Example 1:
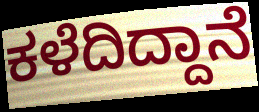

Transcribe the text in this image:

ಕಳೆದಿದ್ದಾನೆ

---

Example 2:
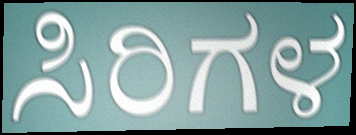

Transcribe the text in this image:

ಸಿರಿಗಳ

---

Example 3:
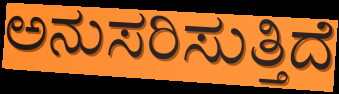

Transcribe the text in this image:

ಅನುಸರಿಸುತ್ತಿದೆ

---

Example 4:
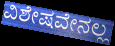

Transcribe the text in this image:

ವಿಶೇಷವೇನಲ್ಲ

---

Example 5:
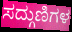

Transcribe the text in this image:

ಸದ್ಗುಣಿಗಳ